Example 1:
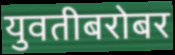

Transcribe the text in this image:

युवतीबरोबर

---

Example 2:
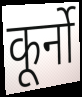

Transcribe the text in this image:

कूर्नो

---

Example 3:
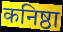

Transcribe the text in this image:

कनिष्ठा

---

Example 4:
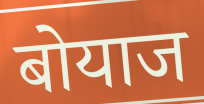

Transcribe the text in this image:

बोयाज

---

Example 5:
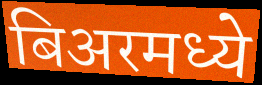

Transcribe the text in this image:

बिअरमध्ये